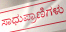
ಸಾಧುಪ್ರಾಣಿಗಳು